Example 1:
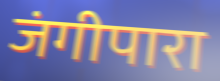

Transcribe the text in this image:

जंगीपारा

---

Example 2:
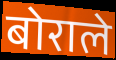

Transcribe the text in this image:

बोराले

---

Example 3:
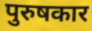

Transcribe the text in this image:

पुरुषकार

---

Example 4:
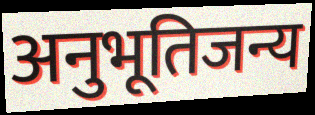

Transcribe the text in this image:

अनुभूतिजन्य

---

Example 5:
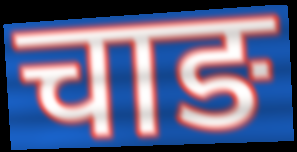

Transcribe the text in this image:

चाङ